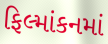
ફિલ્માંકનમાં